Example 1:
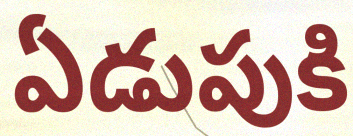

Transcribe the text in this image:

ఏడుపుకి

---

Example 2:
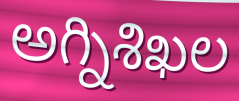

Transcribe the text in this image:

అగ్నిశిఖల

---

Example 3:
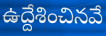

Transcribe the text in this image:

ఉద్దేశించినవే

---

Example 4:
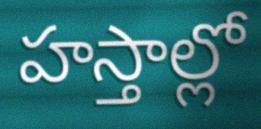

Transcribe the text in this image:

హస్తాల్లో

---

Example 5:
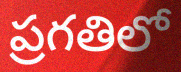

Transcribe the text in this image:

ప్రగతిలో